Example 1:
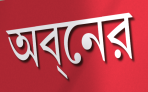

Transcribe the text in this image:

অব্নের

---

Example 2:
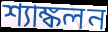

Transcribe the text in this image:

শ্যাঙ্কলন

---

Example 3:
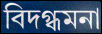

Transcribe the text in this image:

বিদগ্ধমনা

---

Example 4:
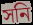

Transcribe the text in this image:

সনি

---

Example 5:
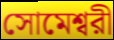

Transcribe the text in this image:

সোমেশ্বরী